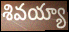
శివయ్యా